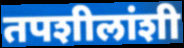
तपशीलांशी